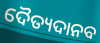
ଦୈତ୍ୟଦାନବ